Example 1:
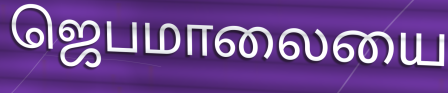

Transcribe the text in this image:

ஜெபமாலையை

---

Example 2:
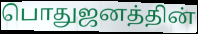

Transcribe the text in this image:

பொதுஜனத்தின்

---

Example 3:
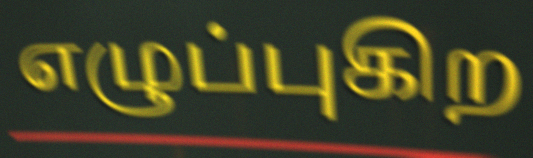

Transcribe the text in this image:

எழுப்புகிற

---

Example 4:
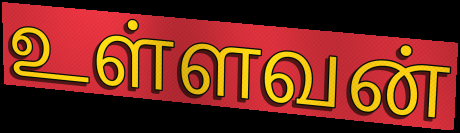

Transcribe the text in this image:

உள்ளவன்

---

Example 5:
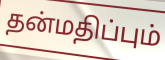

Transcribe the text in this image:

தன்மதிப்பும்